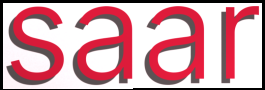
saar